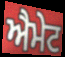
ਐਮੇਟ